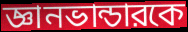
জ্ঞানভান্ডারকে